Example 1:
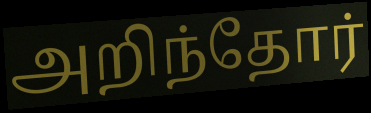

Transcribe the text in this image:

அறிந்தோர்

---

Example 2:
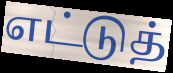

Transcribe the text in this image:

எட்டுத்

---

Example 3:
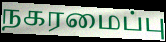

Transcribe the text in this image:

நகரமைப்பு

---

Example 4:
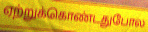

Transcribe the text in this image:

ஏற்றுக்கொண்டதுபோல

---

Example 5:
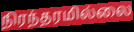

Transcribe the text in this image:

நிரந்தரமில்லை